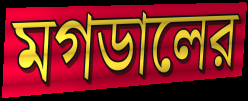
মগডালের